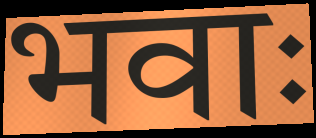
भवाः